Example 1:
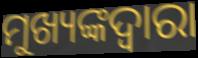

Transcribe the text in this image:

ମୁଖ୍ୟଙ୍କଦ୍ଵାରା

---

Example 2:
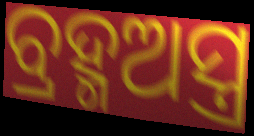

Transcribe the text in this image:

ବ୍ରହ୍ମଅସ୍ତ୍ର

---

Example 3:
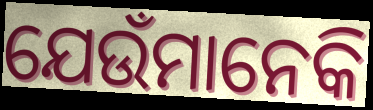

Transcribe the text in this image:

ଯେଉଁମାନେକି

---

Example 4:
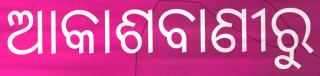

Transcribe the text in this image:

ଆକାଶବାଣୀରୁ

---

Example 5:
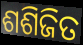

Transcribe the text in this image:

ଶଶିଜିତ